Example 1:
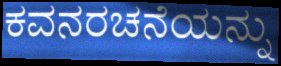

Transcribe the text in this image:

ಕವನರಚನೆಯನ್ನು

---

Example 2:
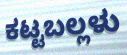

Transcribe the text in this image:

ಕಟ್ಟಬಲ್ಲಳು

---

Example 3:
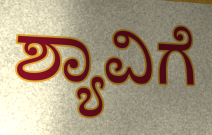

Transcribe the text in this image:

ಶ್ಯಾವಿಗೆ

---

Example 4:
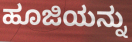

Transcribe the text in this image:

ಹೂಜಿಯನ್ನು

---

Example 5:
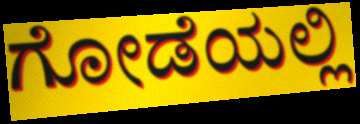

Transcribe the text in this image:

ಗೋಡೆಯಲ್ಲಿ